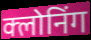
क्‍लोनिंग